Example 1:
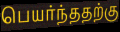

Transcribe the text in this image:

பெயர்ந்ததற்கு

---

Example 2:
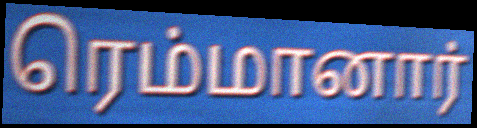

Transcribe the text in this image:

ரெம்மானார்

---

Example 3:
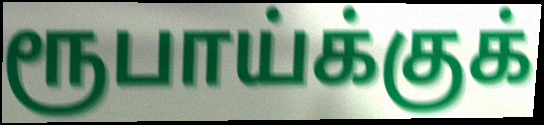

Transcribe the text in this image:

ரூபாய்க்குக்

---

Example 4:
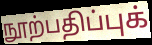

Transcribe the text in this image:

நூற்பதிப்புக்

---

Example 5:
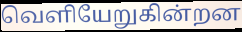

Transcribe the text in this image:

வெளியேறுகின்றன